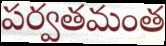
పర్వతమంత